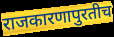
राजकारणापुरतीच